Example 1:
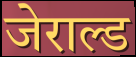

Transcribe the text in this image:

जेराल्ड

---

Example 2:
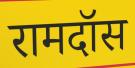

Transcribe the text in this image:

रामदॉस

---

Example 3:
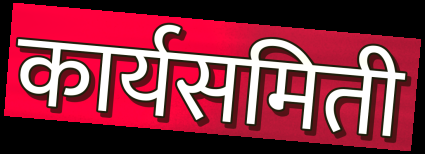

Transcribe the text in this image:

कार्यसमिती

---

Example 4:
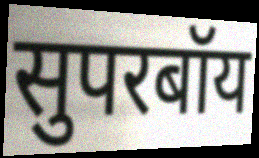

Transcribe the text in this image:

सुपरबॉय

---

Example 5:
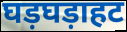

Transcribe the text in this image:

घड़घड़ाहट